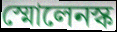
স্মোলেনস্ক